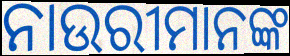
ନାଉରୀମାନଙ୍କ